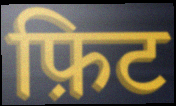
फ़िट